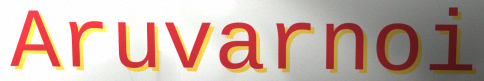
Aruvarnoi